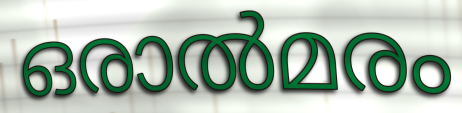
ഒരാൽമരം